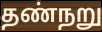
தண்நறு